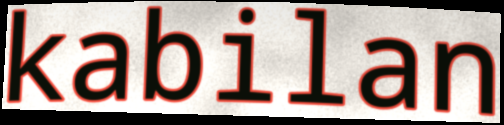
kabilan